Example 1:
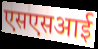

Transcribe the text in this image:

एसएसआई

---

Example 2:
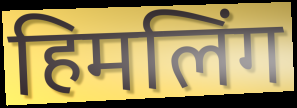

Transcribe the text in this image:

हिमलिंग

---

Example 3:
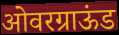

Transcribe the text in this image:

ओवरग्राऊंड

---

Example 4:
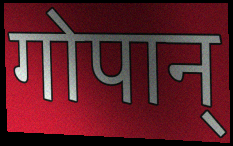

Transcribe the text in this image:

गोपान्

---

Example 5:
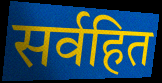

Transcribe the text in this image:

सर्वहित